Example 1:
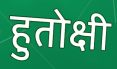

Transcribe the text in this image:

हुतोक्षी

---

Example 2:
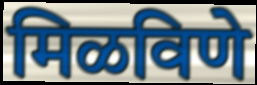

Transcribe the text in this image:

मिळविणे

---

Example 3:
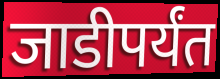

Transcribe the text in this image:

जाडीपर्यंत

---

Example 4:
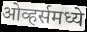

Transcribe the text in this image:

ओव्हर्समध्ये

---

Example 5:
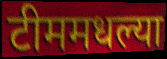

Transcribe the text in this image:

टीममधल्या